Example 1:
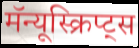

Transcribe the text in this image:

मॅन्यूस्क्रिप्ट्स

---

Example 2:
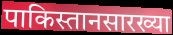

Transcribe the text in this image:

पाकिस्तानसारख्या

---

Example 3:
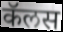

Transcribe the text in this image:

कॅलस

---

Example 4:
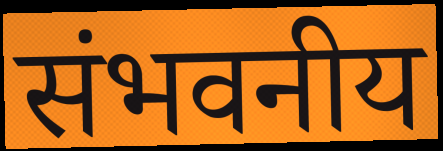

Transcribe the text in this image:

संभवनीय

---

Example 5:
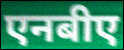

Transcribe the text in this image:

एनबीए